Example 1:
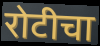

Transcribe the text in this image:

रोटीचा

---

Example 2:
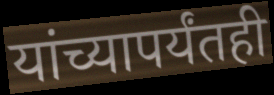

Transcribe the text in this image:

यांच्यापर्यंतही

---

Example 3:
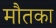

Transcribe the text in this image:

मौतका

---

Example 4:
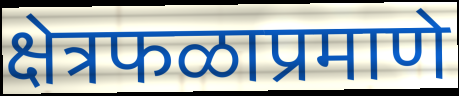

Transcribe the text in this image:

क्षेत्रफळाप्रमाणे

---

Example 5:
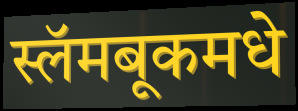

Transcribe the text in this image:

स्लॅमबूकमधे